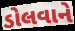
ડોલવાને